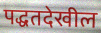
पद्धतदेखील